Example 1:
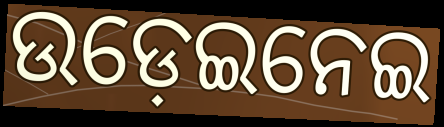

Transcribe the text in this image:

ଉଡ଼େଇନେଇ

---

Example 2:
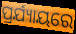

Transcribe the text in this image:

ପ୍ରର୍ଯ୍ୟାୟରେ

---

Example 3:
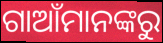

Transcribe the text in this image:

ଗାଆଁମାନଙ୍କରୁ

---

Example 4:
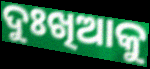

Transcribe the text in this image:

ଦୁଃଖିଆକୁ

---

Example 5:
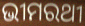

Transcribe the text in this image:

ଭୀମରଥୀ